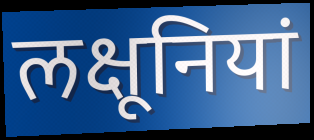
लक्षूनियां